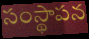
సంస్థాపన